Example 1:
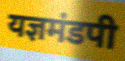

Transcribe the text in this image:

यज्ञमंडपी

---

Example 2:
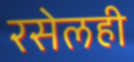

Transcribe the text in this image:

रसेलही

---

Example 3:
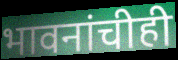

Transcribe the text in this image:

भावनांचीही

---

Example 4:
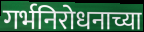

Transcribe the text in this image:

गर्भनिरोधनाच्या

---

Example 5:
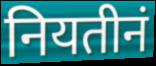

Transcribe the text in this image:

नियतीनं